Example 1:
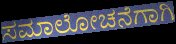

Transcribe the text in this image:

ಸಮಾಲೋಚನೆಗಾಗಿ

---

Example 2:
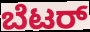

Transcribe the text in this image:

ಬೆಟರ್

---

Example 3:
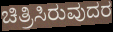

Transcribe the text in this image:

ಚಿತ್ರಿಸಿರುವುದರ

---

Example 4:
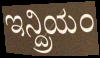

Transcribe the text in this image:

ಇನ್ದ್ರಿಯಂ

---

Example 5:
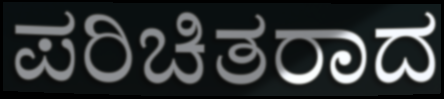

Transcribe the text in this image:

ಪರಿಚಿತರಾದ